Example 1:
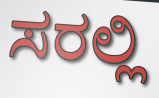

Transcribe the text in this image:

ಸರಲ್ಲಿ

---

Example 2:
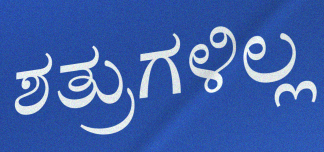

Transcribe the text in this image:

ಶತ್ರುಗಳಿಲ್ಲ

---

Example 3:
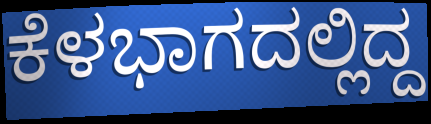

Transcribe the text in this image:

ಕೆಳಭಾಗದಲ್ಲಿದ್ದ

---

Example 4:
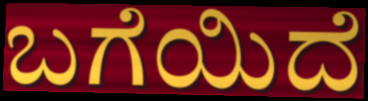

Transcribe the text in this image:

ಬಗೆಯಿದೆ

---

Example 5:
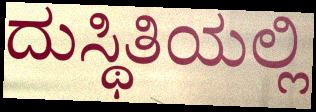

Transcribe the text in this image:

ದುಸ್ಥಿತಿಯಲ್ಲಿ